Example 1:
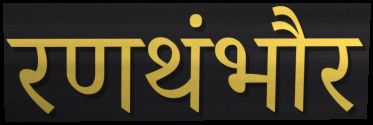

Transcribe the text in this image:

रणथंभौर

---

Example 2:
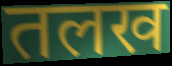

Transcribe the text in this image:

तलख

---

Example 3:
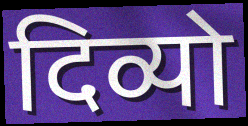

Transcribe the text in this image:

दिव्यो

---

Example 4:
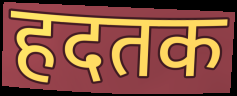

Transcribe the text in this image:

हदतक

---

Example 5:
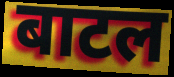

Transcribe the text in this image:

बाटल